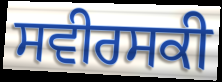
ਸਵੀਰਸਕੀ